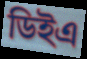
ডিইএ